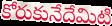
కోరుకునేదేమిటి